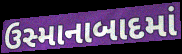
ઉસ્માનાબાદમાં